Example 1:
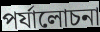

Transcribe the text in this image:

পৰ্যালোচনা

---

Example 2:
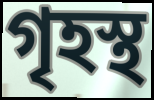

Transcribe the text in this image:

গৃহস্থ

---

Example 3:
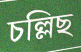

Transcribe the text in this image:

চল্লিছ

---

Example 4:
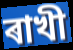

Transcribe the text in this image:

ৰাখী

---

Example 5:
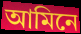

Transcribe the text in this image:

আমিনে